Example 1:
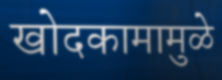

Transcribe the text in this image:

खोदकामामुळे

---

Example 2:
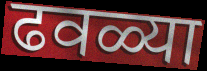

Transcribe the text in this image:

ढवळ्या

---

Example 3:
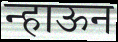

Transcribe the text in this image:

न्हाऊन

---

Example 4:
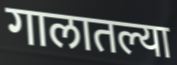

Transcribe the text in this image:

गालातल्या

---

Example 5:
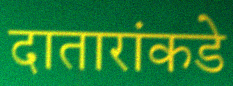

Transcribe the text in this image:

दातारांकडे